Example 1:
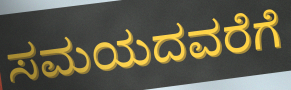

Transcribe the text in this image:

ಸಮಯದವರೆಗೆ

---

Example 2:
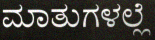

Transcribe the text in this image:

ಮಾತುಗಳಲ್ಲೆ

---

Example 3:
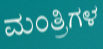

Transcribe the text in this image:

ಮಂತ್ರಿಗಳ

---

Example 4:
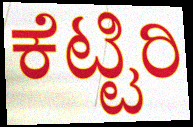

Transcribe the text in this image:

ಕೆಟ್ಟಿರಿ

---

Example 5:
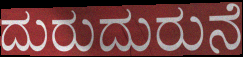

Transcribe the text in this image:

ದುರುದುರುನೆ